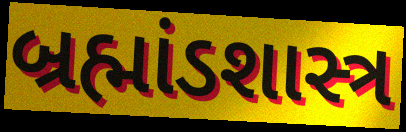
બ્રહ્માંડશાસ્ત્ર